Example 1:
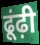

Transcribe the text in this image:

ढूंढ़ी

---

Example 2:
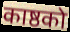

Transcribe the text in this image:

काष्ठको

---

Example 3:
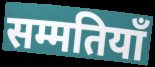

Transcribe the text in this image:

सम्मतियाँ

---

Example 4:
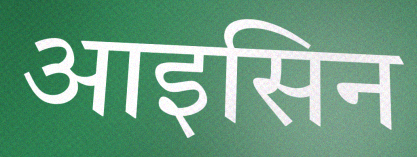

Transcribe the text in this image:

आइसिन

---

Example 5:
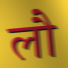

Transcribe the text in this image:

लौ